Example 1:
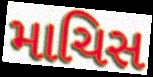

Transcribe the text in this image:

માચિસ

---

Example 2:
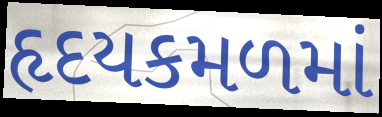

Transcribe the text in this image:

હૃદયકમળમાં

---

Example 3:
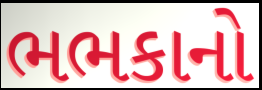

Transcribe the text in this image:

ભભકાનો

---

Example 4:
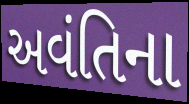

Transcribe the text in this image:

અવંતિના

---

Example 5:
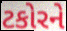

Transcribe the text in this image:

ટકોરને